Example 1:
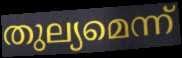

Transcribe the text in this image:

തുല്യമെന്ന്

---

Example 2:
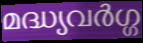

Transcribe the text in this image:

മദ്ധ്യവർഗ്ഗ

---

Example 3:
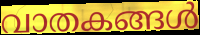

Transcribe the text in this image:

വാതകങ്ങൾ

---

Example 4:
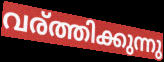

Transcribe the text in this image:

വര്ത്തിക്കുന്നു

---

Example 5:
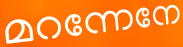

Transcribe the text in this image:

മറന്നേനേ